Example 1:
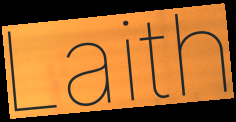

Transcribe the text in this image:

Laith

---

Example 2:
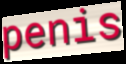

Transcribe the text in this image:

penis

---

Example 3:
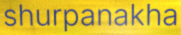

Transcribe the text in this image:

shurpanakha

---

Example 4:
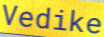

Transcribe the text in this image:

Vedike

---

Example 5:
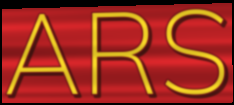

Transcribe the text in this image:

ARS